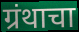
ग्रंथाचा